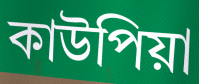
কাউপিয়া